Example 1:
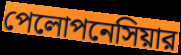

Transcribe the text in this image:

পেলোপনেসিয়ার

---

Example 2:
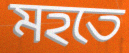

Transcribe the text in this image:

মহতে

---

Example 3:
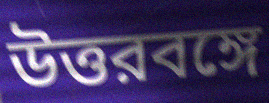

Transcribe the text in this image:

উত্তরবঙ্গে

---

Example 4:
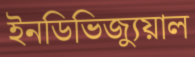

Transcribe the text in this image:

ইনডিভিজ্যুয়াল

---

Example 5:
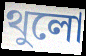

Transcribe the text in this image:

থুলো